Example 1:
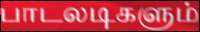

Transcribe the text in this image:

பாடலடிகளும்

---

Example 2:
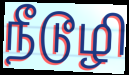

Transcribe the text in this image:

நீடூழி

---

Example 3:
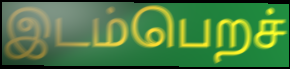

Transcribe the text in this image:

இடம்பெறச்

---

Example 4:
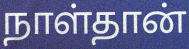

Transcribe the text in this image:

நாள்தான்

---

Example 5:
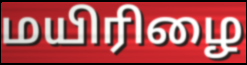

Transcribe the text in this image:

மயிரிழை